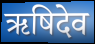
ऋषिदेव